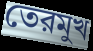
তেরমুখ